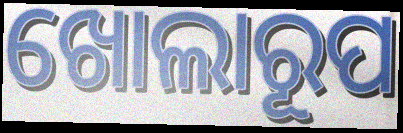
ଖୋଲାରୂପ